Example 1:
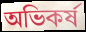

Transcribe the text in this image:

অভিকর্ষ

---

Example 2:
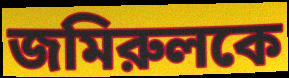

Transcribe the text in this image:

জমিরুলকে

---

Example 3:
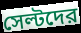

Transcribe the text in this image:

সেল্টদের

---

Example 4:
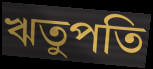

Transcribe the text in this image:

ঋতুপতি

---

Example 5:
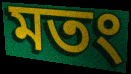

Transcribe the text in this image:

মতং